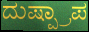
ದುಷ್ಪ್ರಾಪ